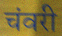
चंवरी